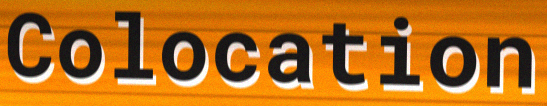
Colocation